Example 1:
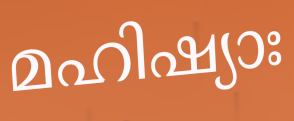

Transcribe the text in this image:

മഹിഷ്യാഃ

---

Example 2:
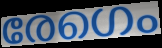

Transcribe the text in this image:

രേഗെം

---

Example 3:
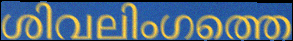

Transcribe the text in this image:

ശിവലിംഗത്തെ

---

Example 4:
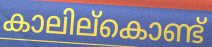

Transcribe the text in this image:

കാലില്കൊണ്ട്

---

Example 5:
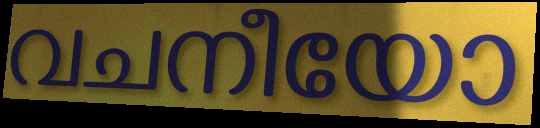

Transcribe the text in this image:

വചനീയോ